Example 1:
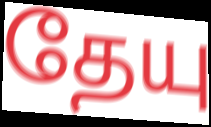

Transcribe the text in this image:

தேயு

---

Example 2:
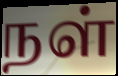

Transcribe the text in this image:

நள்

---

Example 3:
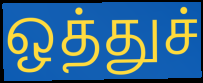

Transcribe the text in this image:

ஒத்துச்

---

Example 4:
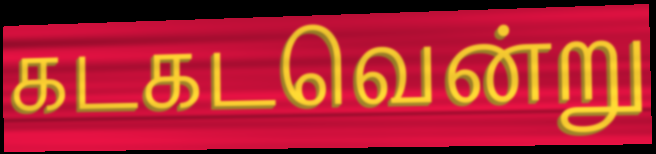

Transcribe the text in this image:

கடகடவென்று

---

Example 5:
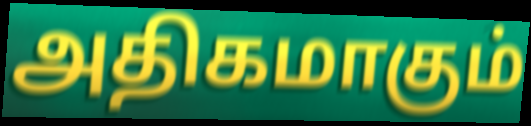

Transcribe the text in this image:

அதிகமாகும்